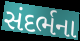
સંદર્ભના